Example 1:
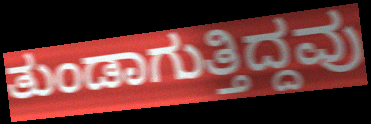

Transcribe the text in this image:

ತುಂಡಾಗುತ್ತಿದ್ದವು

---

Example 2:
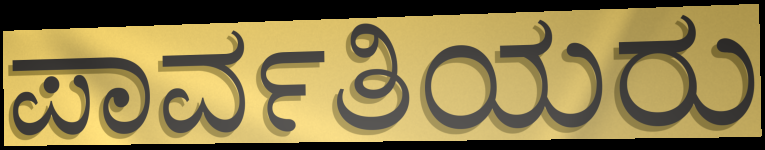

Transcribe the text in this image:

ಪಾರ್ವತಿಯರು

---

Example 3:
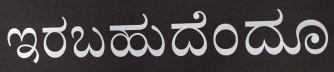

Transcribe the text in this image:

ಇರಬಹುದೆಂದೂ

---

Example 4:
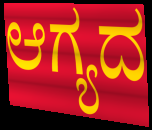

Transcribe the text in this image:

ಆಗ್ಯದ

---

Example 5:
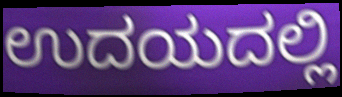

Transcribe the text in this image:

ಉದಯದಲ್ಲಿ